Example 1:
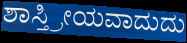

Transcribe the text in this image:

ಶಾಸ್ತ್ರೀಯವಾದುದು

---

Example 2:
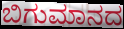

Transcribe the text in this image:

ಬಿಗುಮಾನದ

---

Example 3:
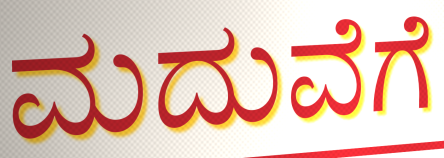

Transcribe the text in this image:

ಮದುವೆಗೆ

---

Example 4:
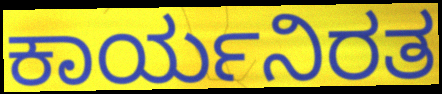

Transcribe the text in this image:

ಕಾರ್ಯನಿರತ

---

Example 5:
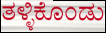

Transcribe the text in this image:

ತಳ್ಳಿಕೊಂಡು